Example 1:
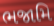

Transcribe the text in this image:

ભજામિ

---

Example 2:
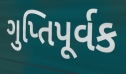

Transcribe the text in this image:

ગુપ્તિપૂર્વક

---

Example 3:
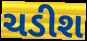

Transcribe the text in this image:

ચડીશ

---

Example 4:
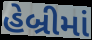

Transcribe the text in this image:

હેબ્રીમાં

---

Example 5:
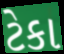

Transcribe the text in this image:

ટેકા